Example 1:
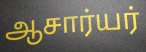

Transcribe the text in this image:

ஆசார்யர்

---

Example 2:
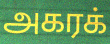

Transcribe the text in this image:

அகரக்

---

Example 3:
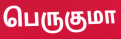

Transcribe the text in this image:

பெருகுமா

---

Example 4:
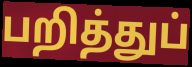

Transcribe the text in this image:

பறித்துப்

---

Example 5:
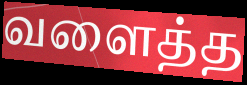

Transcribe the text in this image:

வளைத்த